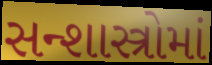
સન્શાસ્ત્રોમાં